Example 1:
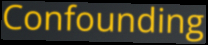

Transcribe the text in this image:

Confounding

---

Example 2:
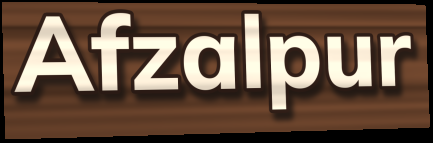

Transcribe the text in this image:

Afzalpur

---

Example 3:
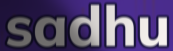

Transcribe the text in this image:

sadhu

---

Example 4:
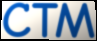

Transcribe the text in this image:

CTM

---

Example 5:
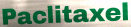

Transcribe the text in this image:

Paclitaxel